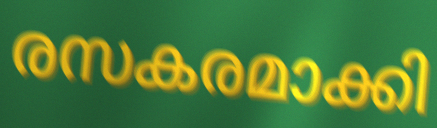
രസകരമാക്കി